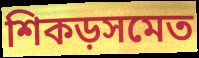
শিকড়সমেত